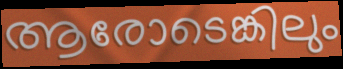
ആരോടെങ്കിലും